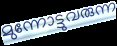
മുന്നോട്ടുവരുന്ന